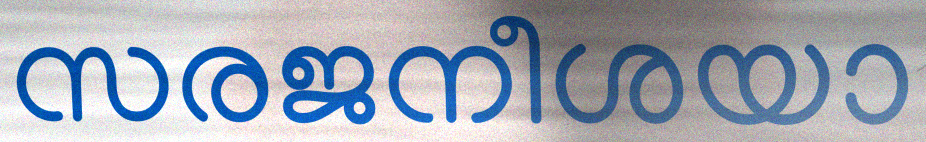
സരജനീശയാ